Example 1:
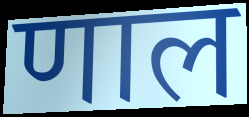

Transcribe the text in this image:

णाल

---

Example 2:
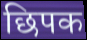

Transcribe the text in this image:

छिपक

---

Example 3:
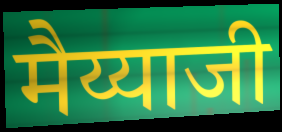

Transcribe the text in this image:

मैय्याजी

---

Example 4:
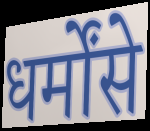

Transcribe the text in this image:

धर्मोंसे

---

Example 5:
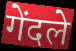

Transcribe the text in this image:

गेंदले